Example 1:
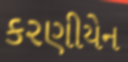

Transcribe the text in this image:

કરણીયેન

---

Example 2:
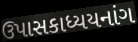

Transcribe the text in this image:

ઉપાસકાધ્યયનાંગ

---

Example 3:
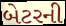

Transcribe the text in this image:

બેટરની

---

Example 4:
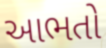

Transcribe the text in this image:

આભતો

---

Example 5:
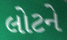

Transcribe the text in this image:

લોટને